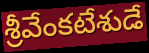
శ్రీవేంకటేశుడే